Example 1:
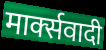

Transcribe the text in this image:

मार्क्‍सवादी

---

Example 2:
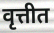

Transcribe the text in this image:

वृत्तीत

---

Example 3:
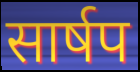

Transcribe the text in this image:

सार्षप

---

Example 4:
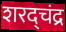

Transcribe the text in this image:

शरद्चंद्र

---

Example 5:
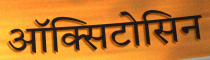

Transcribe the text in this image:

ऑक्सिटोसिन